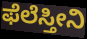
ಫೆಲೆಸ್ತೀನಿ